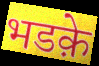
भडक़े